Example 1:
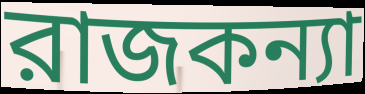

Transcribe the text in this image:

রাজকন্যা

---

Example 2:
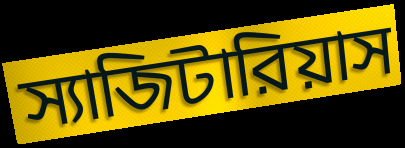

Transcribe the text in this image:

স্যাজিটারিয়াস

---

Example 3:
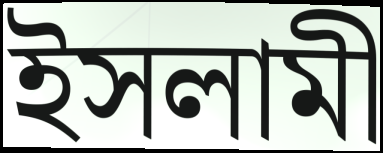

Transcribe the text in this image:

ইসলামী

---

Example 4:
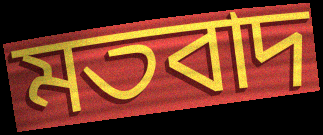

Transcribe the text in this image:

মতবাদ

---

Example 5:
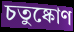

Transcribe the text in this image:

চতুষ্কোণ